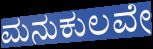
ಮನುಕುಲವೇ